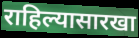
राहिल्यासारखा